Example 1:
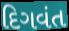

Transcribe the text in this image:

દિગવંત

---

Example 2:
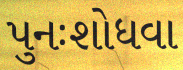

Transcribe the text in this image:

પુનઃશોધવા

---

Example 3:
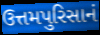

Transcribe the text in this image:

ઉત્તમપુરિસાનં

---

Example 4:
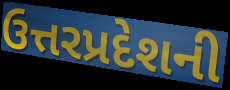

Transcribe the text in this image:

ઉત્તરપ્રદેશની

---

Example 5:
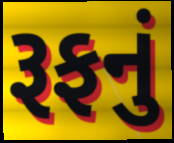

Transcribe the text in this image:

રૂફનું